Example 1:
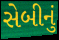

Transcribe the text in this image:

સેબીનું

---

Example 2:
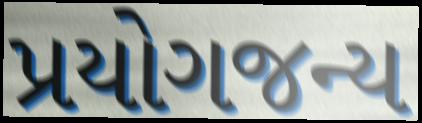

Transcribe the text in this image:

પ્રયોગજન્ય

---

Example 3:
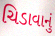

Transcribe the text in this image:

ચિડાવાનું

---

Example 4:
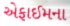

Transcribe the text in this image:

એફાઈમના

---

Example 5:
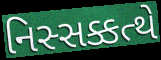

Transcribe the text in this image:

નિસ્સક્કત્થે